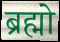
ब्रह्मो